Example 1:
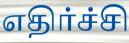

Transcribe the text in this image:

எதிர்ச்சி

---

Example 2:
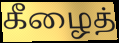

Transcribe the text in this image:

கீழைத்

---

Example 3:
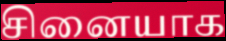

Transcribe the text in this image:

சினையாக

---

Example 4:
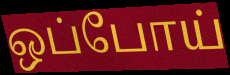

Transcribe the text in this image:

ஒப்போய்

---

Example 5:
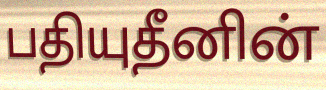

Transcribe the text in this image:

பதியுதீனின்